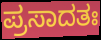
ಪ್ರಸಾದತಃ